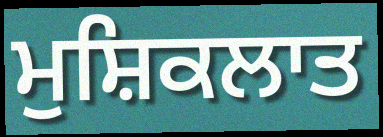
ਮੁਸ਼ਿਕਲਾਤ